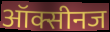
ऑक्सीनज